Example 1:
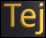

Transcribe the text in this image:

Tej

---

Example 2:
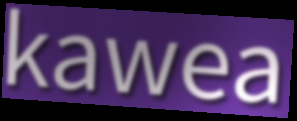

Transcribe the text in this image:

kawea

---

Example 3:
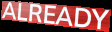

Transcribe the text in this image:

ALREADY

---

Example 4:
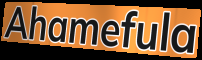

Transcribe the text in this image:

Ahamefula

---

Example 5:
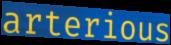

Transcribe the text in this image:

arterious